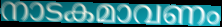
നാടകമാവണം